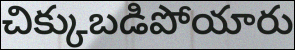
చిక్కుబడిపోయారు